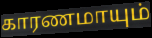
காரணமாயும்